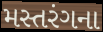
મસ્તરંગના